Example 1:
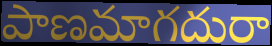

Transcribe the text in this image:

పాణమాగదురా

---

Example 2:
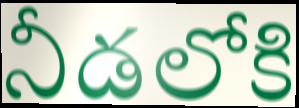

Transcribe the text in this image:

నీడలోకి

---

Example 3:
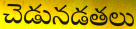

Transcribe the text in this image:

చెడునడతలు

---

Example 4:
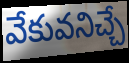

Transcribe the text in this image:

వేకువనిచ్చే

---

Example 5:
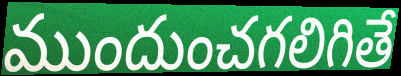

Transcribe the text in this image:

ముందుంచగలిగితే